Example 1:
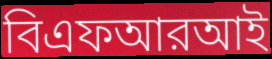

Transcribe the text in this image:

বিএফআরআই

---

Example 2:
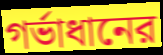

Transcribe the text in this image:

গর্ভাধানের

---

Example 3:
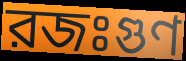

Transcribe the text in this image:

রজঃগুণ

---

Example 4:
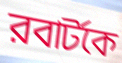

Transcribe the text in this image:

রবার্টকে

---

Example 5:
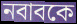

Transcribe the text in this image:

নবাবকে